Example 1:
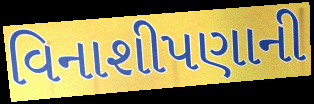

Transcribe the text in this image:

વિનાશીપણાની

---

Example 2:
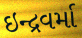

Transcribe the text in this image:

ઇન્દ્રવર્મા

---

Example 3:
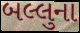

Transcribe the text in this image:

બલ્લુના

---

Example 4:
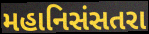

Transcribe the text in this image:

મહાનિસંસતરા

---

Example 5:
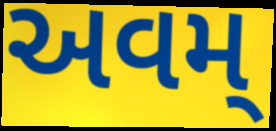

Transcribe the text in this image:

અવમ્